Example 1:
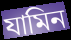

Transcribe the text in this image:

যামিন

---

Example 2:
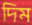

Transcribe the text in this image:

দিম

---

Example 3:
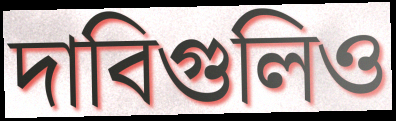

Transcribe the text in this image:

দাবিগুলিও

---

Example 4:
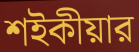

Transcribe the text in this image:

শইকীয়ার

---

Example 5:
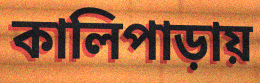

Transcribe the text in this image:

কালিপাড়ায়